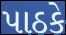
પાઠકે